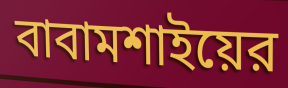
বাবামশাইয়ের